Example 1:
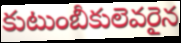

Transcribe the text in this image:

కుటుంబీకులెవరైన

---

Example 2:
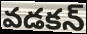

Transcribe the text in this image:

వడకన్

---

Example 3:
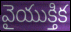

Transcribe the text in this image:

వైయుక్తిక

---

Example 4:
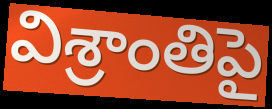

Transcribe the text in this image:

విశ్రాంతిపై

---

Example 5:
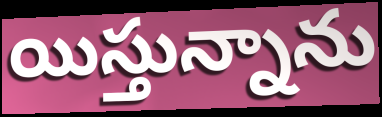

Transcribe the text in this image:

యిస్తున్నాను